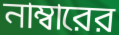
নাম্বারের